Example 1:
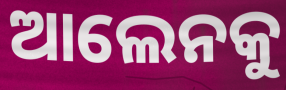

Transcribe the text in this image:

ଆଲେନକୁ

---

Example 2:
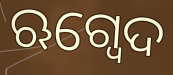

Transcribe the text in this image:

ଋଗ୍ବେଦ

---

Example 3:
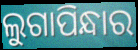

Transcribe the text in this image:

ଲୁଗାପିନ୍ଧାର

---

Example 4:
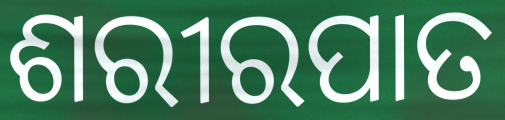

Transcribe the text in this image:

ଶରୀରପାତ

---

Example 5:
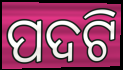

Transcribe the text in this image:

ପଦଟି